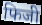
फिजी